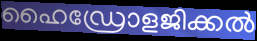
ഹൈഡ്രോളജിക്കൽ